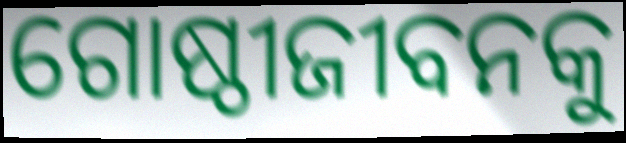
ଗୋଷ୍ଠୀଜୀବନକୁ